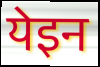
येइन